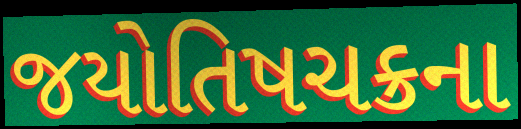
જયોતિષચક્રના